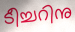
ടീച്ചറിനു